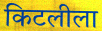
किटलीला